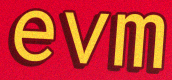
evm